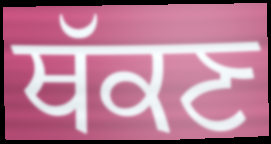
ਥੱਕਣ